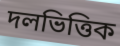
দলভিত্তিক